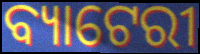
ବ୍ୟାଟେରୀ